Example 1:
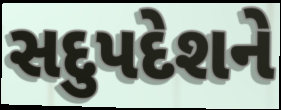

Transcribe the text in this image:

સદુપદેશને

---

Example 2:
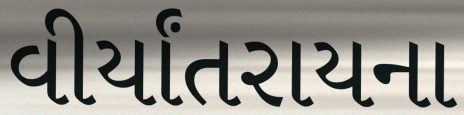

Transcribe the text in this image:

વીર્યાંતરાયના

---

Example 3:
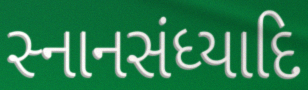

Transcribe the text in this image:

સ્નાનસંધ્યાદિ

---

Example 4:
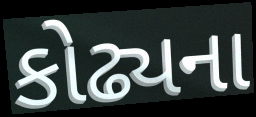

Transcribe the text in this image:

કોઢ્યના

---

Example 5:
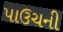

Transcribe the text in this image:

પાઉચની